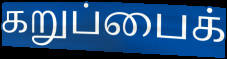
கறுப்பைக்